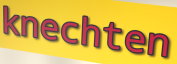
knechten